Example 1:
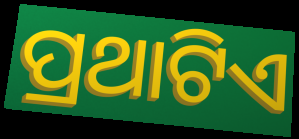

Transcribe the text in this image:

ପ୍ରଥାଟିଏ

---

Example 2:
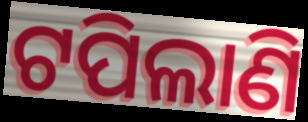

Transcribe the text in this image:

ଟପିଲାଣି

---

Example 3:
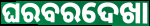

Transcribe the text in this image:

ଘରବରଦେଖା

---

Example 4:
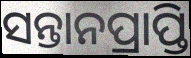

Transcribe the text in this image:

ସନ୍ତାନପ୍ରାପ୍ତି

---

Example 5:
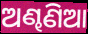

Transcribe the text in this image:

ଅଣ୍ଢଣିଆ